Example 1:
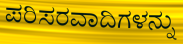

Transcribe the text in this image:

ಪರಿಸರವಾದಿಗಳನ್ನು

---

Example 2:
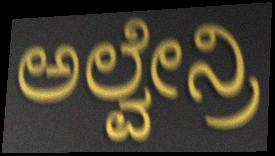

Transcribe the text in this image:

ಅಲ್ವೇನ್ರಿ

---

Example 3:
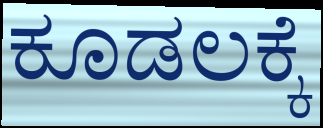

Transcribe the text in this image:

ಕೂಡಲಕ್ಕೆ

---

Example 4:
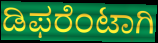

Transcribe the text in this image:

ಡಿಫರೆಂಟಾಗಿ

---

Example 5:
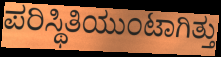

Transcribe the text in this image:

ಪರಿಸ್ಥಿತಿಯುಂಟಾಗಿತ್ತು